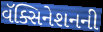
વૅક્સિનેશનની